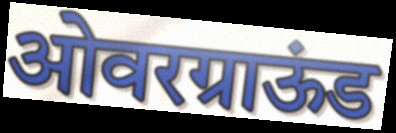
ओवरग्राऊंड